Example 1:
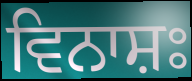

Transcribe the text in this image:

ਵਿਨਾਸ਼ਃ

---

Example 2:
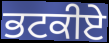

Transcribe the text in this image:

ਭਟਕੀਏ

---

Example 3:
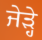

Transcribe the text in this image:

ਜੇੜ੍ਹੇ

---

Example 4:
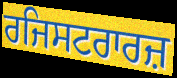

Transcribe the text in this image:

ਰਜਿਸਟਰਾਰਜ਼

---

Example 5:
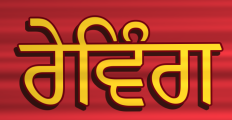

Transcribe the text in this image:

ਰੇਵਿੰਗ